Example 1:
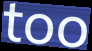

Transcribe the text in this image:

too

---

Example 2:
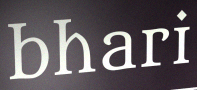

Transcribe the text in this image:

bhari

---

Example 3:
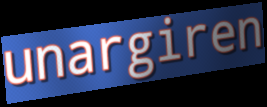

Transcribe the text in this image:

unargiren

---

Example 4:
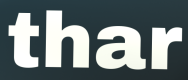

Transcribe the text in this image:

thar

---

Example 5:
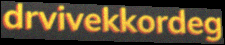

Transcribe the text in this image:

drvivekkordeg